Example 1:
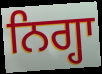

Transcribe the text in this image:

ਨਿਗ੍ਹਾ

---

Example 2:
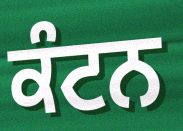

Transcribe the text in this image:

ਕੰਟਨ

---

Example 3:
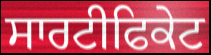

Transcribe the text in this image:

ਸਾਰਟੀਫਿਕੇਟ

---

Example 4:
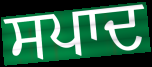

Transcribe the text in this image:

ਸਪਾਦ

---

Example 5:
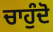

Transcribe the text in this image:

ਚਾਹੁੰਦੋ